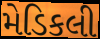
મેડિકલી